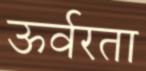
ऊर्वरता